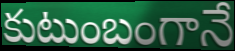
కుటుంబంగానే